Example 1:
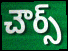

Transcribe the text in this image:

చౌర్స్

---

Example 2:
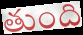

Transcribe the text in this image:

తుంది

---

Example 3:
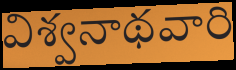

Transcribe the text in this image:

విశ్వనాథవారి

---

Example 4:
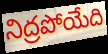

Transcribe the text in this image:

నిద్రపోయేది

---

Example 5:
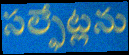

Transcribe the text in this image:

సల్ఫేట్లను